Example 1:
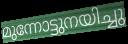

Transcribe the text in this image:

മുന്നോട്ടുനയിച്ചു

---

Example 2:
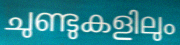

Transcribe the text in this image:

ചുണ്ടുകളിലും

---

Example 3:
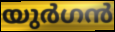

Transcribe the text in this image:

യുർഗൻ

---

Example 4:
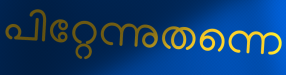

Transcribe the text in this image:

പിറ്റേന്നുതന്നെ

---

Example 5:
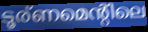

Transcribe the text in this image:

ടൂര്ണമെന്റിലെ